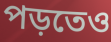
পড়তেও